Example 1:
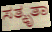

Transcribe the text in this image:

ಸತ್ಕೃತಾ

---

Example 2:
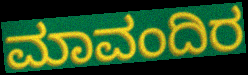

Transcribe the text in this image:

ಮಾವಂದಿರ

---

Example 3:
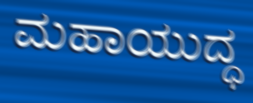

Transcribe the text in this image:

ಮಹಾಯುದ್ಧ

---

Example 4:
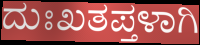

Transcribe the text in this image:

ದುಃಖತಪ್ತಳಾಗಿ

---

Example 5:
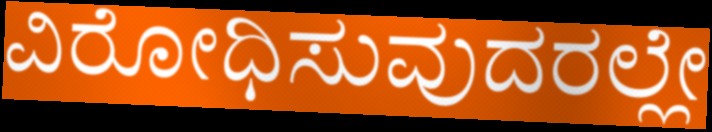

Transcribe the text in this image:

ವಿರೋಧಿಸುವುದರಲ್ಲೇ